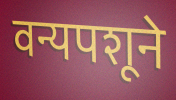
वन्यपशूने